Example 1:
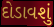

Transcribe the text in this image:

દોડાવશું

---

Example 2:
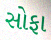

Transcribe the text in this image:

સોફા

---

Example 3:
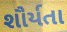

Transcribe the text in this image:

શૌર્યતા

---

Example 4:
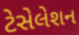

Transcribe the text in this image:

ટેસેલેશન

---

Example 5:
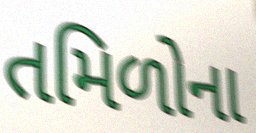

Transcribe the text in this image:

તમિળોના